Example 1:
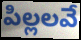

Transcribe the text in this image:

పిల్లలవే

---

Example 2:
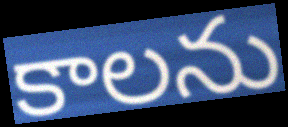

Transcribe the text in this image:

కాలను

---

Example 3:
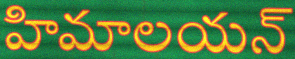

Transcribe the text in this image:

హిమాలయన్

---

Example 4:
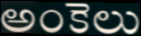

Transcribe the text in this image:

అంకెలు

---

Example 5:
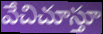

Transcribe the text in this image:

వేచిచూస్తూ